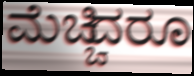
ಮೆಚ್ಚಿದರೂ